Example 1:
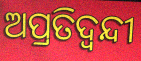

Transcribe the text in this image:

ଅପ୍ରତିଦ୍ବନ୍ଦୀ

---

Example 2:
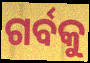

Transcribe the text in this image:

ଗର୍ବକୁ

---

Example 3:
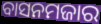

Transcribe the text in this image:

ବାସନମଜାର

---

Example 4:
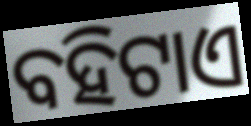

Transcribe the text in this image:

ବହିଟାଏ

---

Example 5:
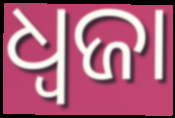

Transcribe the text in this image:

ଧ୍ୱଜା